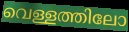
വെള്ളത്തിലോ